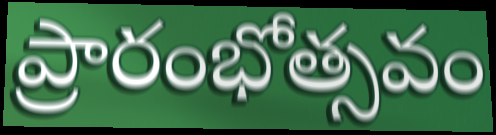
ప్రారంభోత్సవం